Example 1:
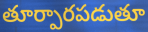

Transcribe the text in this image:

తూర్పారపడుతూ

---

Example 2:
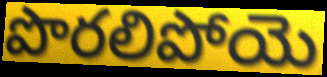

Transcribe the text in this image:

పొరలిపోయె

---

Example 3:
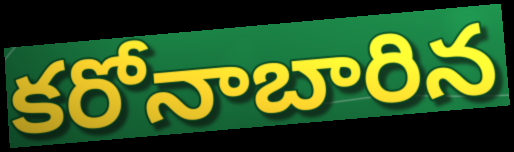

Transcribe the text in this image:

కరోనాబారిన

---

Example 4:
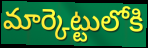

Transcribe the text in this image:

మార్కెట్టులోకి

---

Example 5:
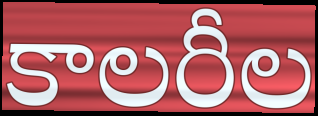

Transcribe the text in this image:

కాలరీల